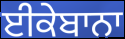
ਈਕੇਬਾਨਾ